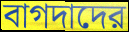
বাগদাদের